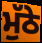
ਮੁੱਠੇ